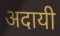
अदायी